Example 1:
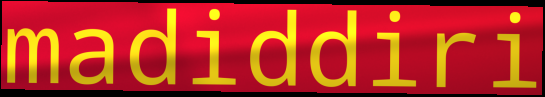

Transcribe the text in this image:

madiddiri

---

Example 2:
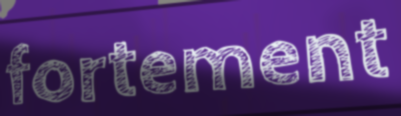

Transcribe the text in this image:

fortement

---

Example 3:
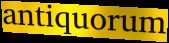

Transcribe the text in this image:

antiquorum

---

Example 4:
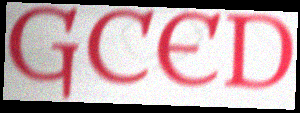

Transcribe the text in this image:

GCED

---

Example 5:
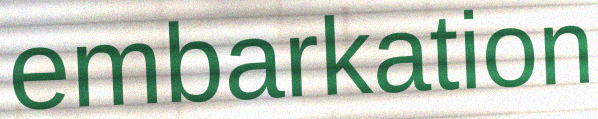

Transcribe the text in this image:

embarkation